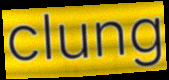
clung